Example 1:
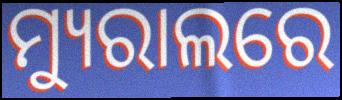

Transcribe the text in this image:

ମ୍ୟୁରାଲରେ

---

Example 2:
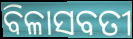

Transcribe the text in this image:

ବିଳାସବତୀ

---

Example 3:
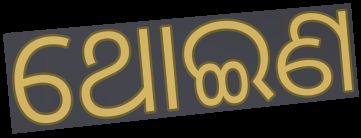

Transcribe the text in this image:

ଥୋଇଣ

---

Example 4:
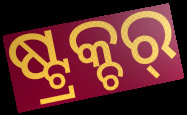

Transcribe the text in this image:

ଷ୍ଟ୍ରକ୍ଚର୍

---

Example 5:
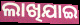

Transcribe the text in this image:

ଲାଖିଯାଇ